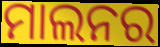
ମାଲନର